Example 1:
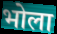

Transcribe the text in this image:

भोला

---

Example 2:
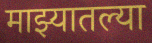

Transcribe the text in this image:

माझ्यातल्या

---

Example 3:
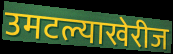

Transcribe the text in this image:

उमटल्याखेरीज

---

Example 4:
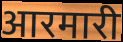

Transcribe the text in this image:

आरमारी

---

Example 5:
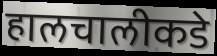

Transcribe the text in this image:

हालचालीकडे